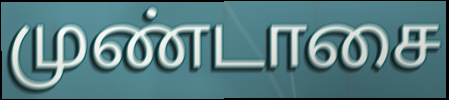
முண்டாசை